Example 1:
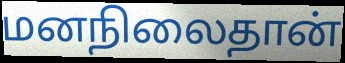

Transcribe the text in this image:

மனநிலைதான்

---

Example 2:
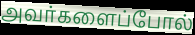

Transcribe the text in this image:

அவர்களைப்போல்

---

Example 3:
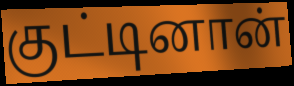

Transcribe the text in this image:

குட்டினான்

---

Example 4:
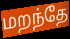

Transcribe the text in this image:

மறந்தே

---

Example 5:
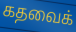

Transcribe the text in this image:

கதவைக்